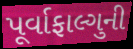
પૂર્વાફાલ્ગુની